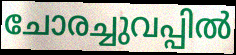
ചോരച്ചുവപ്പിൽ